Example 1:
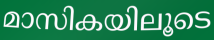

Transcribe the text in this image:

മാസികയിലൂടെ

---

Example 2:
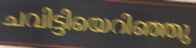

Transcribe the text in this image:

ചവിട്ടിയെറിഞ്ഞു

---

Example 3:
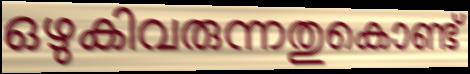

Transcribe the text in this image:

ഒഴുകിവരുന്നതുകൊണ്ട്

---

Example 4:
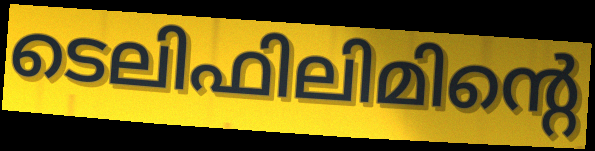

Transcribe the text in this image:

ടെലിഫിലിമിന്റെ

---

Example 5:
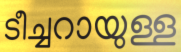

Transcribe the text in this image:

ടീച്ചറായുള്ള